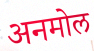
अनमोल